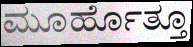
ಮೂರ್ಹೊತ್ತೂ